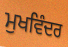
ਮੁਖਵਿੰਦਰ